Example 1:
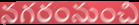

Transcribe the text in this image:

నగరంనుంచి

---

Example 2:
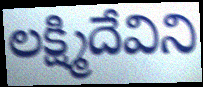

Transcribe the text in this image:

లక్ష్మిదేవిని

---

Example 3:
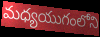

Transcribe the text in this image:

మధ్యయుగంలోని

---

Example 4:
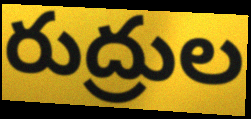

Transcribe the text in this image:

రుద్రుల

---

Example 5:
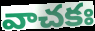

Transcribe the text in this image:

వాచకః